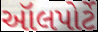
ઑલપોર્ટે